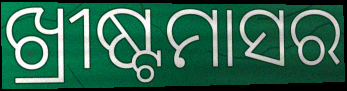
ଖ୍ରୀଷ୍ଟମାସର